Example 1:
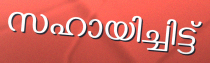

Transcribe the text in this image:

സഹായിച്ചിട്ട്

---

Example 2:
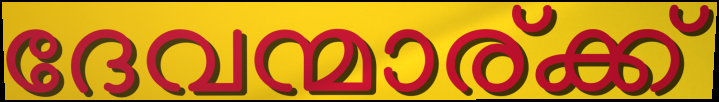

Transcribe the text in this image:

ദേവന്മാര്ക്ക്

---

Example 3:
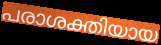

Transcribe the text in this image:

പരാശക്തിയായ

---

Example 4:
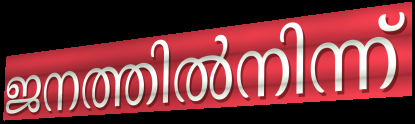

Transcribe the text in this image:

ജനത്തിൽനിന്ന്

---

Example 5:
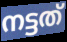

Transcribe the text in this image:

നട്ടത്